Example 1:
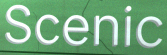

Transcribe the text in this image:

Scenic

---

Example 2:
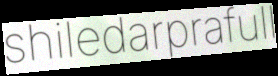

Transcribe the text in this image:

shiledarprafull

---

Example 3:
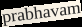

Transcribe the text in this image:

prabhavam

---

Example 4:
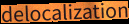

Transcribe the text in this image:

delocalization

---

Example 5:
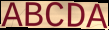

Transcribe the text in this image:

ABCDA